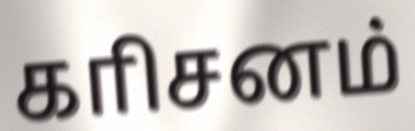
கரிசனம்